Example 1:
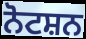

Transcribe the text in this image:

ਨੋਟਸ਼ਨ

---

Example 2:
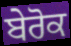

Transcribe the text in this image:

ਬੇਰੋਕ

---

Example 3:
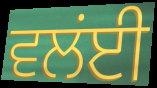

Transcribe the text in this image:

ਵਲਂਈ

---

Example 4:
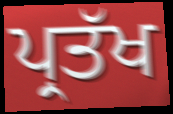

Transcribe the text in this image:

ਪ੍ਰਤੱਖ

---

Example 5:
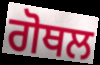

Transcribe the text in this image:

ਗੋਥਲ